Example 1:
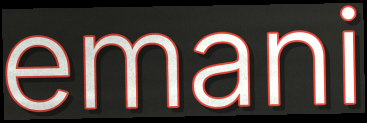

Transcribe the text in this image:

emani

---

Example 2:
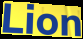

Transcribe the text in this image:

Lion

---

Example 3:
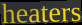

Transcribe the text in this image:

heaters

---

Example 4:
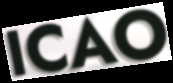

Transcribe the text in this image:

ICAO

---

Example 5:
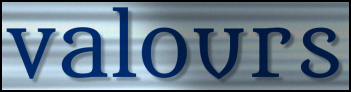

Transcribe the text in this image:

valours